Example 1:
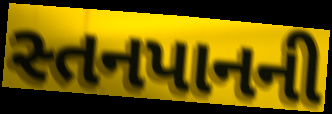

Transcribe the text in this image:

સ્તનપાનની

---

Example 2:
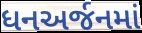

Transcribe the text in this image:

ધનઅર્જનમાં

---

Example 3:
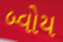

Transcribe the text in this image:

બ્વોય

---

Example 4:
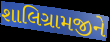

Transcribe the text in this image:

શાલિગ્રામજીને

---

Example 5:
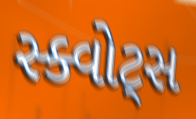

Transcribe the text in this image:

સ્ક્વોટ્સ